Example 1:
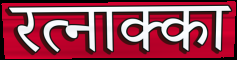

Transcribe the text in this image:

रत्नाक्का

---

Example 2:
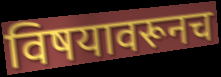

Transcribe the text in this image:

विषयावरूनच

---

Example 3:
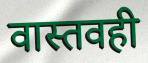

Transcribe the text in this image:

वास्तवही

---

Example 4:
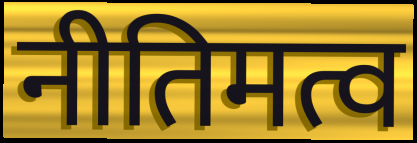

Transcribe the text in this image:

नीतिमत्व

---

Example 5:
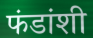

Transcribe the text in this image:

फंडांशी